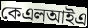
কেএলআইএ